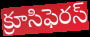
క్రూసిఫెరస్